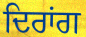
ਦਿਰਾਂਗ